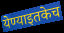
येण्याइतकेच